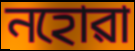
নহোৱা